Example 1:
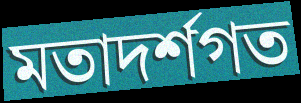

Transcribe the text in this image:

মতাদৰ্শগত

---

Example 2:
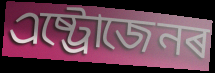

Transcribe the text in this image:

এষ্ট্ৰোজেনৰ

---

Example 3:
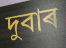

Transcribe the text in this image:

দুবাৰ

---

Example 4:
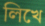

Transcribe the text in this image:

লিখে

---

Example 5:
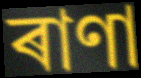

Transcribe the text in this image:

ৰাণা